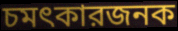
চমৎকারজনক